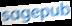
sagepub